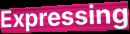
Expressing